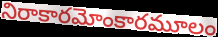
నిరాకారమోంకారమూలం